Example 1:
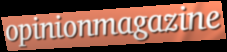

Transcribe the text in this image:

opinionmagazine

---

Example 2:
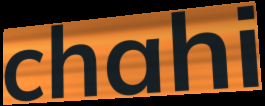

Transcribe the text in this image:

chahi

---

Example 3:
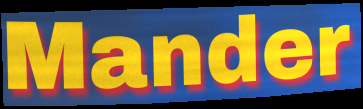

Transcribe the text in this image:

Mander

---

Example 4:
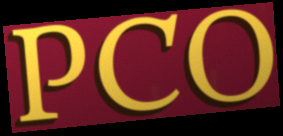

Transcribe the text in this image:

PCO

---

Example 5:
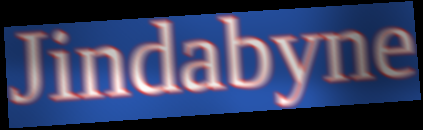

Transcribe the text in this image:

Jindabyne